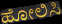
ಹೋಲಿಸಿ